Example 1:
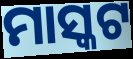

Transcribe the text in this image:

ମାସ୍କଟ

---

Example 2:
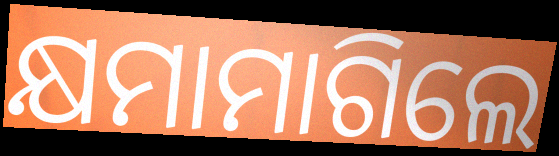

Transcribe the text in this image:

କ୍ଷମାମାଗିଲେ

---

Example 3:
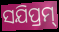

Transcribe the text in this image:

ସଯିପ୍ରମ୍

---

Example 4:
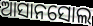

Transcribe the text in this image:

ଆସାନସୋଲ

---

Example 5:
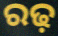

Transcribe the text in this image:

ରଢ଼